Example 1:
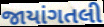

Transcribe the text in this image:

જાયાંગતલી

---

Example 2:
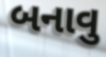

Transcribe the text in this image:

બનાવુ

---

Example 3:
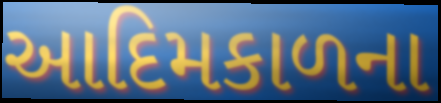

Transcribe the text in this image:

આદિમકાળના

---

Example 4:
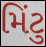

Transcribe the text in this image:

મિંટુ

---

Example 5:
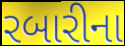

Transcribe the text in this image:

રબારીના